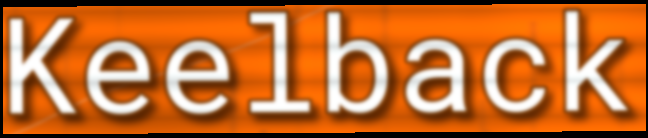
Keelback